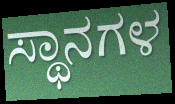
ಸ್ಥಾನಗಳ